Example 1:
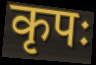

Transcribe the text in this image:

कृपः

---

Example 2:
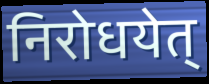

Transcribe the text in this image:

निरोधयेत्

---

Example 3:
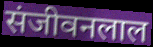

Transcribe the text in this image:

संजीवनलाल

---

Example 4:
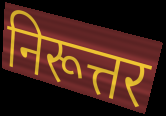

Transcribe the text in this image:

निरूत्तर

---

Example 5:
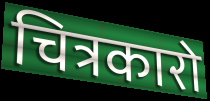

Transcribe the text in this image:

चित्रकारो